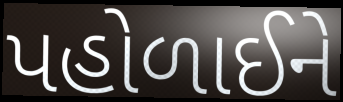
પહોળાઈને